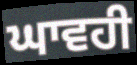
ਘਾਵਹੀ